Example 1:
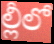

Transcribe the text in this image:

ల్లీలో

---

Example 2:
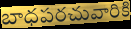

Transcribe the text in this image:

బాధపరచువారికి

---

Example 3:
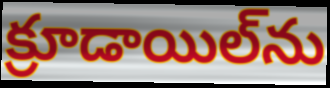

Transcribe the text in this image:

క్రూడాయిల్‌ను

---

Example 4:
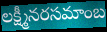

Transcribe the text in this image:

లక్ష్మీనరసమాంబ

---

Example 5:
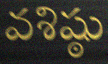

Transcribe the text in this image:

వశిష్ఠు